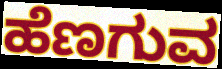
ಹೆಣಗುವ